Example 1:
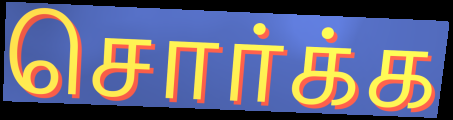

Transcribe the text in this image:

சொர்க்க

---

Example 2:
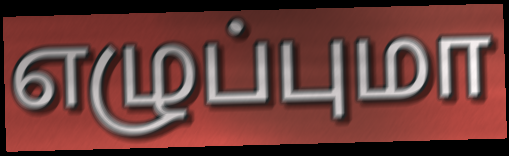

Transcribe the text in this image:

எழுப்புமா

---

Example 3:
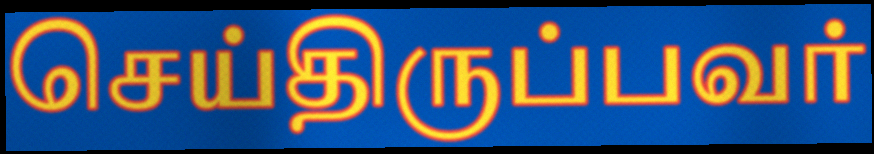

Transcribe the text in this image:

செய்திருப்பவர்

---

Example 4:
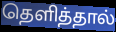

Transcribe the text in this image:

தெளித்தால்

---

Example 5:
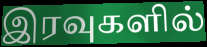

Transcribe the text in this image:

இரவுகளில்